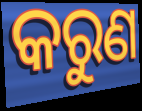
କରୁଣ